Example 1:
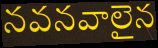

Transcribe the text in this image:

నవనవాలైన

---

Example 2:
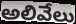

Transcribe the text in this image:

అలివేలు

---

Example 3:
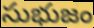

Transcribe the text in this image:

సుభుజం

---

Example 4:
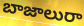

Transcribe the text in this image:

బాజాలురా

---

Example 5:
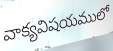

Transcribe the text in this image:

వాక్యవిషయములో